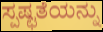
ಸ್ಪಷ್ಟತೆಯನ್ನು